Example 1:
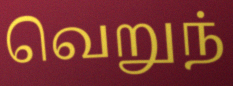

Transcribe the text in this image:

வெறுந்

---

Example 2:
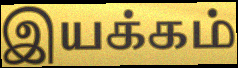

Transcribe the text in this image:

இயக்கம்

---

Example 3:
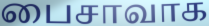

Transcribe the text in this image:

பைசாவாக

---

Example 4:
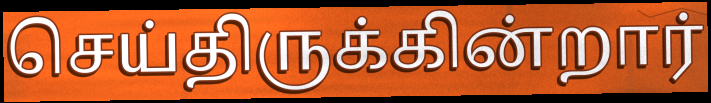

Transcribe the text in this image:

செய்திருக்கின்றார்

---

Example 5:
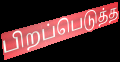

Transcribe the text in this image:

பிறப்பெடுத்த